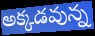
అక్కడవున్న